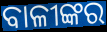
ବାଳୀଙ୍କର